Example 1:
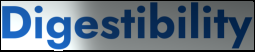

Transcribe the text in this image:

Digestibility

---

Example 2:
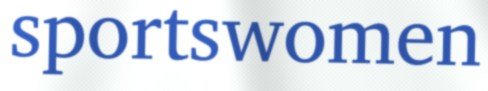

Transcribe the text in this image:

sportswomen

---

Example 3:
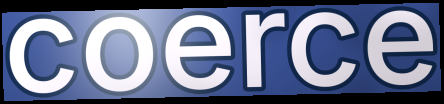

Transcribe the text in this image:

coerce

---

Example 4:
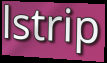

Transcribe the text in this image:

lstrip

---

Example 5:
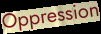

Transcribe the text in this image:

Oppression